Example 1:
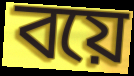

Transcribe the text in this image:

বয়ে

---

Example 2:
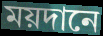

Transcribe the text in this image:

ময়দানে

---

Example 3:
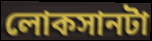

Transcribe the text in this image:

লোকসানটা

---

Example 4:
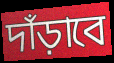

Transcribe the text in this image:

দাঁড়াবে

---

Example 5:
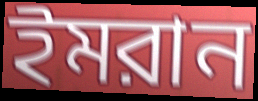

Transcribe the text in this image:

ইমরান